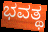
ಭವತ್ಥ